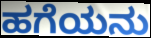
ಹಗೆಯನು